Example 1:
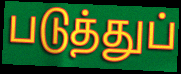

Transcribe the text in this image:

படுத்துப்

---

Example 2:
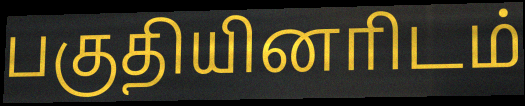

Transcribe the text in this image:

பகுதியினரிடம்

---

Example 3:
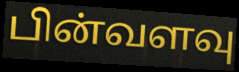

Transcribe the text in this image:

பின்வளவு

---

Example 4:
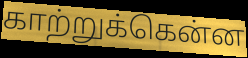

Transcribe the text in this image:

காற்றுக்கென்ன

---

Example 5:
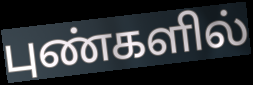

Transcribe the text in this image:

புண்களில்